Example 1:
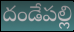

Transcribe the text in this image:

దండేపల్లి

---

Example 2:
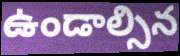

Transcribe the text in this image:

ఉండాల్సిన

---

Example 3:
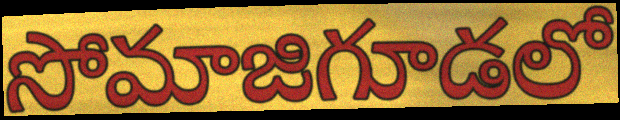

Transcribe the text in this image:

సోమాజిగూడలో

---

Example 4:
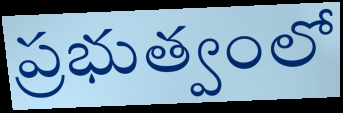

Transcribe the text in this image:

ప్రభుత్వంలో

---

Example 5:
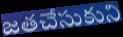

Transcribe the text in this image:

జతచేసుకుని